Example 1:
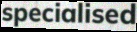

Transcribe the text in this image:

specialised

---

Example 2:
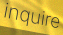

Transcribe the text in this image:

inquire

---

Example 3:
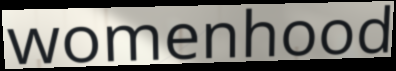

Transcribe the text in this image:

womenhood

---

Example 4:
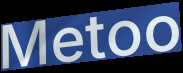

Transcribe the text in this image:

Metoo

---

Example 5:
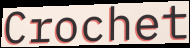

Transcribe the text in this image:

Crochet